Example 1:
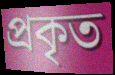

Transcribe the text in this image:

প্রকৃত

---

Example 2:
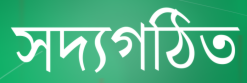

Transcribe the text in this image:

সদ্যগঠিত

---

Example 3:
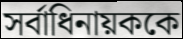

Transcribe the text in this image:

সর্বাধিনায়ককে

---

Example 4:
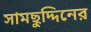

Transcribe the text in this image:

সামছুদ্দিনের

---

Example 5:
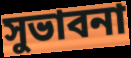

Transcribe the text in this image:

সুভাবনা